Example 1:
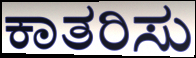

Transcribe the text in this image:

ಕಾತರಿಸು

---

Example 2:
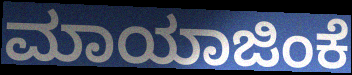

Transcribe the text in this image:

ಮಾಯಾಜಿಂಕೆ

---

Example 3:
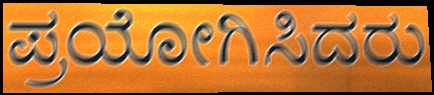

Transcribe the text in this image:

ಪ್ರಯೋಗಿಸಿದರು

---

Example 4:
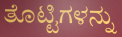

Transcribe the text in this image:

ತೊಟ್ಟಿಗಳನ್ನು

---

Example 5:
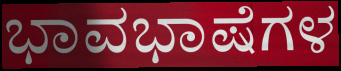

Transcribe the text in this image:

ಭಾವಭಾಷೆಗಳ